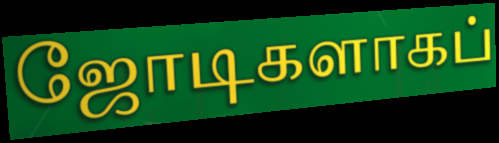
ஜோடிகளாகப்